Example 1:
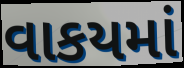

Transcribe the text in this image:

વાકયમાં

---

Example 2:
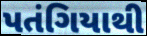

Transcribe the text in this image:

પતંગિયાથી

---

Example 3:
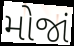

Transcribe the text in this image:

મોજાં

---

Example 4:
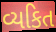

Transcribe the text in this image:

વ્યકિત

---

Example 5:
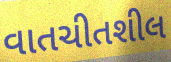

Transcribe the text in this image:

વાતચીતશીલ